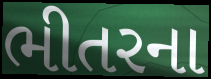
ભીતરના